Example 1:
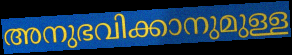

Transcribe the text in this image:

അനുഭവിക്കാനുമുള്ള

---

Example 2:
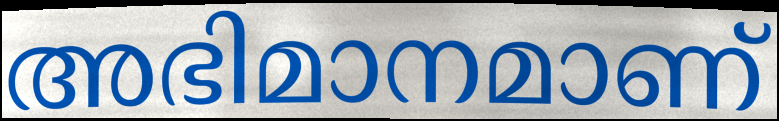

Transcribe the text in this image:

അഭിമാനമാണ്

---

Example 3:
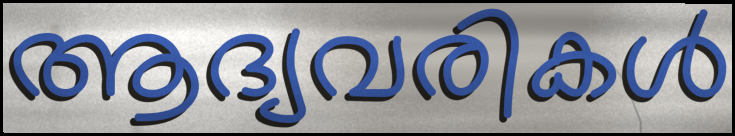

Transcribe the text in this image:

ആദ്യവരികൾ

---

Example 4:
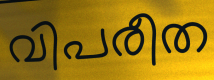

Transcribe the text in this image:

വിപരീത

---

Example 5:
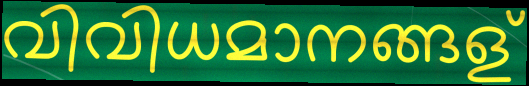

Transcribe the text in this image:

വിവിധമാനങ്ങള്